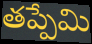
తప్పేమి